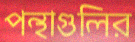
পন্থাগুলির